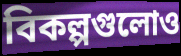
বিকল্পগুলোও